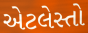
એટલેસ્તો